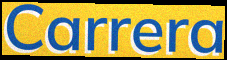
Carrera